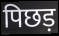
पिछड़